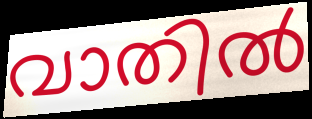
വാതിൽ